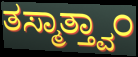
ತಸ್ಮಾತ್ತ್ವಾಂ